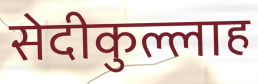
सेदीकुल्लाह